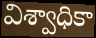
విశ్వాధికా